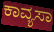
ಕಾವ್ಯಸಾ